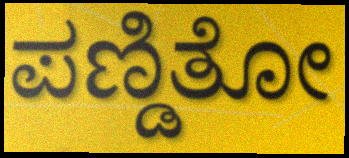
ಪಣ್ಡಿತೋ